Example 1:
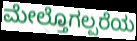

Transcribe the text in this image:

ಮೇಲ್ತೊಗಲ್ಪರೆಯ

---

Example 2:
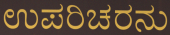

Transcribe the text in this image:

ಉಪರಿಚರನು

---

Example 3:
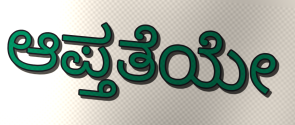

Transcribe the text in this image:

ಆಪ್ತತೆಯೇ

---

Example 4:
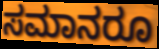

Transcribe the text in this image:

ಸಮಾನರೂ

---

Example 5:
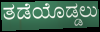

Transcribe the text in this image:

ತಡೆಯೊಡ್ಡಲು